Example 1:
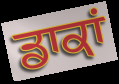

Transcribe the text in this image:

ਡਾਕਾਂ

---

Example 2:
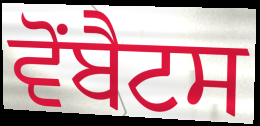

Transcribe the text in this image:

ਵੋਂਬੈਟਸ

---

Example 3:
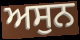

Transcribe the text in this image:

ਅਸੁਨ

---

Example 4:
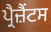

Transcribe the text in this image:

ਪ੍ਰੈਜ਼ੈਂਟਸ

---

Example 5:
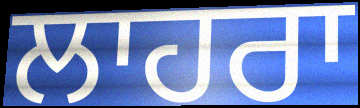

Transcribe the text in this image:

ਲਾਹਰਾ